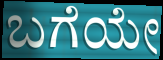
ಬಗೆಯೇ